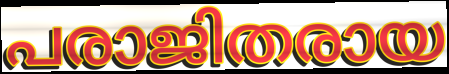
പരാജിതരായ